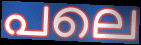
പലെ